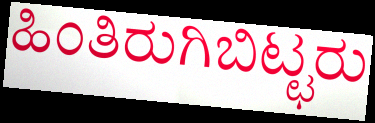
ಹಿಂತಿರುಗಿಬಿಟ್ಟರು